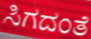
ಸಿಗದಂತೆ